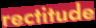
rectitude